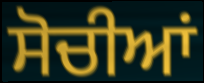
ਸੋਚੀਆਂ